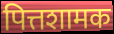
पित्तशामक